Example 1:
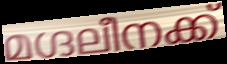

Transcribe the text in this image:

മഗ്ദലീനക്ക്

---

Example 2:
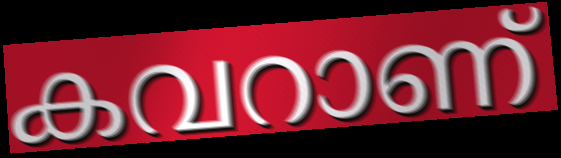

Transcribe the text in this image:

കവറാണ്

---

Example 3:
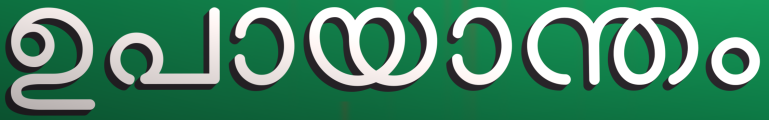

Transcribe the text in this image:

ഉപായാന്തം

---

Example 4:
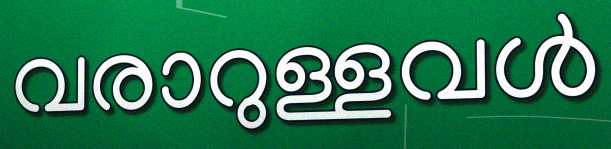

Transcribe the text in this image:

വരാറുള്ളവൾ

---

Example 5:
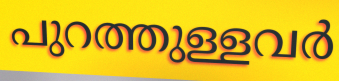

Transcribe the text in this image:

പുറത്തുള്ളവർ